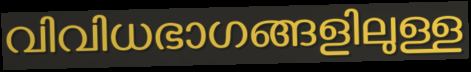
വിവിധഭാഗങ്ങളിലുള്ള